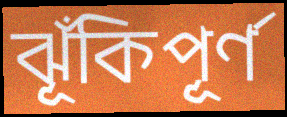
ঝূঁকিপূর্ণ